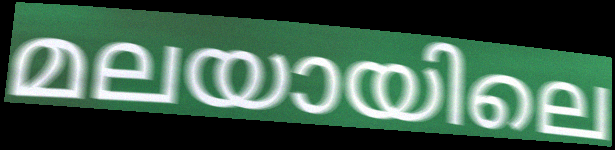
മലയായിലെ